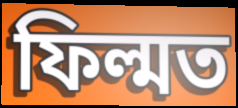
ফিল্মত